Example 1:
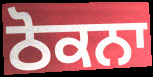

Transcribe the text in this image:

ਠੋਕਨਾ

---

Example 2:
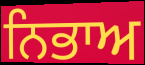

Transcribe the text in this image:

ਨਿਭਾਅ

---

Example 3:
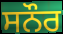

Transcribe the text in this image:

ਸਨੌਰ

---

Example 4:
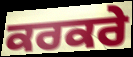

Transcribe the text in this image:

ਕਰਕਰੇ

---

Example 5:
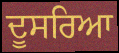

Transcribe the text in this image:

ਦੂਸਰਿਆ